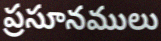
ప్రసూనములు